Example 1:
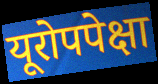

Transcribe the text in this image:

यूरोपपेक्षा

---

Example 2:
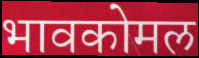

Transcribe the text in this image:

भावकोमल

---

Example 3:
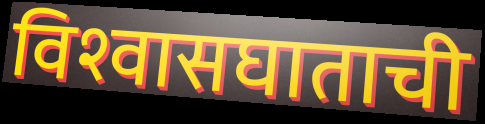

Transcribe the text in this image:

विश्वासघाताची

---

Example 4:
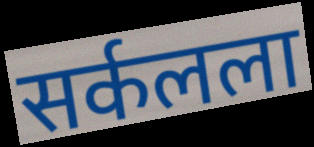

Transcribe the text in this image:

सर्कलला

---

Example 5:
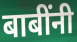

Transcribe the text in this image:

बाबींनी